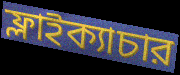
ফ্লাইক্যাচার